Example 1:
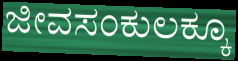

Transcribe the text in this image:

ಜೀವಸಂಕುಲಕ್ಕೂ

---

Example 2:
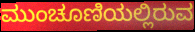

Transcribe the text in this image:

ಮುಂಚೂಣಿಯಲ್ಲಿರುವ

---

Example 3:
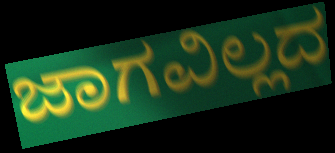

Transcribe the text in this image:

ಜಾಗವಿಲ್ಲದ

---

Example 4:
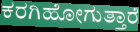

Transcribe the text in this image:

ಕರಗಿಹೋಗುತ್ತಾರೆ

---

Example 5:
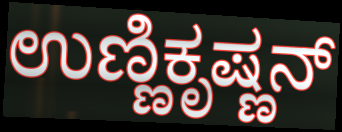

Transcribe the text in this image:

ಉಣ್ಣಿಕೃಷ್ಣನ್